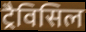
ट्रैविसिल